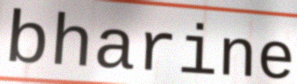
bharine